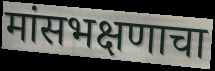
मांसभक्षणाचा